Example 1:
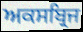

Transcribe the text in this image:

ਅਕਸਬ੍ਰਿਜ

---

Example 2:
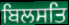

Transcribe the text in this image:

ਬਿਲਸਤਿ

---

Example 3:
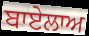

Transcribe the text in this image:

ਬਾਏਲਾਅ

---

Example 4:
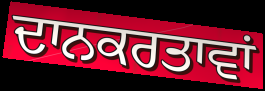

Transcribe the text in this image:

ਦਾਨਕਰਤਾਵਾਂ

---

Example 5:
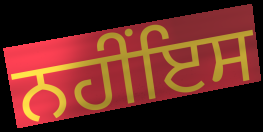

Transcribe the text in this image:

ਨਹੀਂਇਸ